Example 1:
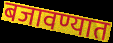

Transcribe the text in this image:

बजावण्यात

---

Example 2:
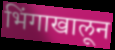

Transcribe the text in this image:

भिंगाखालून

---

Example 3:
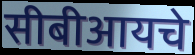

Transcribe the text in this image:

सीबीआयचे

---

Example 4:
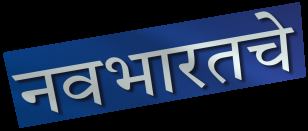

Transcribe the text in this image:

नवभारतचे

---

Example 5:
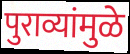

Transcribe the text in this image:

पुराव्यांमुळे